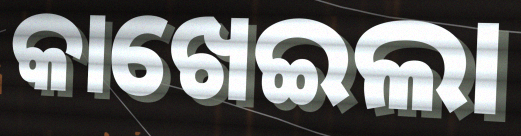
କାଖେଇଲା